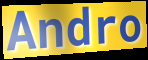
Andro